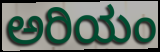
ಅರಿಯಂ